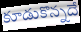
కూడుకొన్నదే